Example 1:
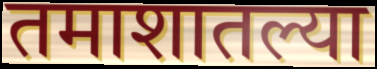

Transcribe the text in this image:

तमाशातल्या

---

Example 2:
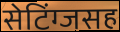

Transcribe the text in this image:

सेटिंग्जसह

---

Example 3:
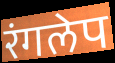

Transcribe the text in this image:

रंगलेप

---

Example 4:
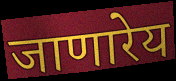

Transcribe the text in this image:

जाणारेय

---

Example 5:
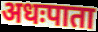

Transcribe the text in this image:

अधःपाता